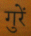
गुरें